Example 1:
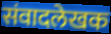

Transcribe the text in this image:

संवादलेखक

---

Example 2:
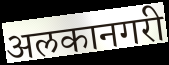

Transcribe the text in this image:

अलकानगरी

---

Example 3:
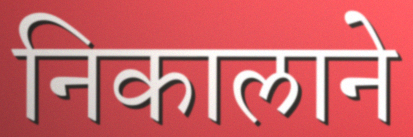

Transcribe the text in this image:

निकालाने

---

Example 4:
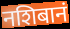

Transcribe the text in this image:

नशिबानं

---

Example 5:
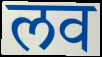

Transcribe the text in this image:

लव